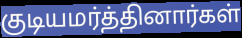
குடியமர்த்தினார்கள்